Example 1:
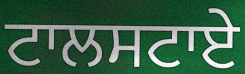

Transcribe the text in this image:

ਟਾਲਸਟਾਏ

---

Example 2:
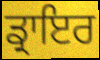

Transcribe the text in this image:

ਡ੍ਰਾਇਰ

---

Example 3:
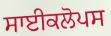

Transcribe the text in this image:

ਸਾਈਕਲੋਪਸ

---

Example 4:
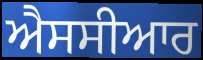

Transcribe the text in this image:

ਐਸਸੀਆਰ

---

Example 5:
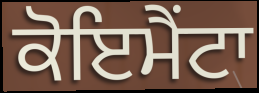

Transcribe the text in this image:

ਕੋਇਮੈਂਟਾ